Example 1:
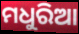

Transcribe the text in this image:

ମଧୁରିଆ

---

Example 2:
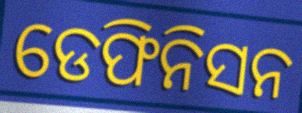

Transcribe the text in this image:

ଡେଫିନିସନ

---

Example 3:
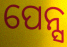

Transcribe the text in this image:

ପେନ୍ସ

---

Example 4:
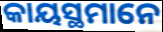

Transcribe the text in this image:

କାୟସ୍ଥମାନେ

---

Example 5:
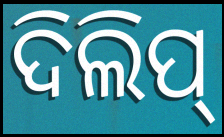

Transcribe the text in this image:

ଦିଲିପ୍